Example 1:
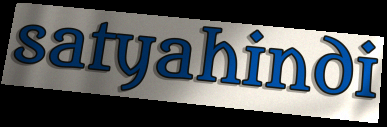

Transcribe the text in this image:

satyahindi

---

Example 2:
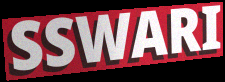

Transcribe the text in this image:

SSWARI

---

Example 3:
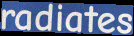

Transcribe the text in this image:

radiates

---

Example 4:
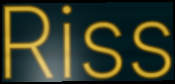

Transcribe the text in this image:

Riss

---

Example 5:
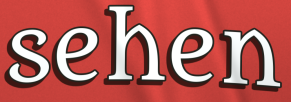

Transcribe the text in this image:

sehen